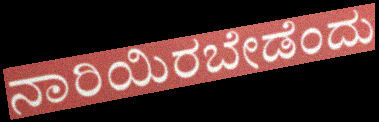
ನಾರಿಯಿರಬೇಡೆಂದು